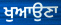
ਖੁਆਉਣਾ